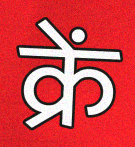
क्रें